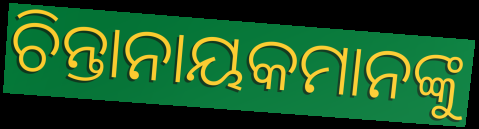
ଚିନ୍ତାନାୟକମାନଙ୍କୁ